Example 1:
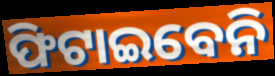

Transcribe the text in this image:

ଫିଟାଇବେନି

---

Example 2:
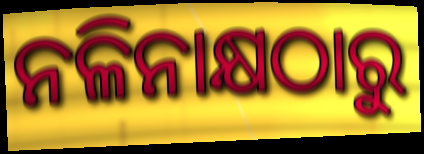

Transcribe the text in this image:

ନଳିନାକ୍ଷଠାରୁ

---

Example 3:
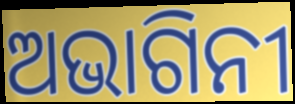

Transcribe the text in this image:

ଅଭାଗିନୀ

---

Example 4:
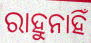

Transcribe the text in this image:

ରାହୁନାହିଁ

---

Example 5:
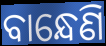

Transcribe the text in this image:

ବାନ୍ଧେଣି